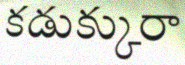
కడుక్కురా